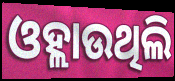
ଓହ୍ଲାଉଥିଲି